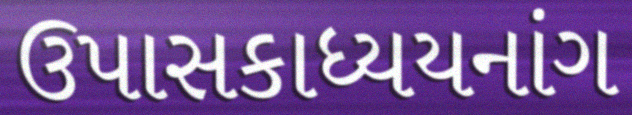
ઉપાસકાધ્યયનાંગ